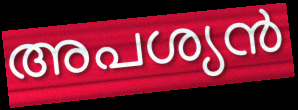
അപശ്യൻ